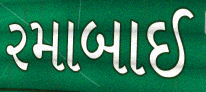
રમાબાઈ